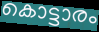
കൊട്ടാരം